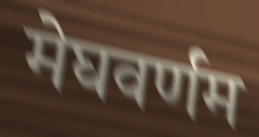
मेघवर्णम